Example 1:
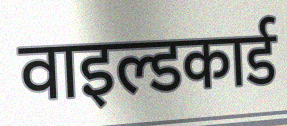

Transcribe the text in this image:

वाइल्डकार्ड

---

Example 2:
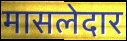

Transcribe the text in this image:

मासलेदार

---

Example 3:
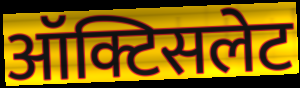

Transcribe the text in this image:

ऑक्टिसलेट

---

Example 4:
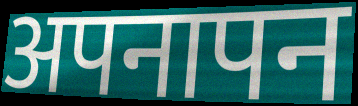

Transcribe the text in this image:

अपनापन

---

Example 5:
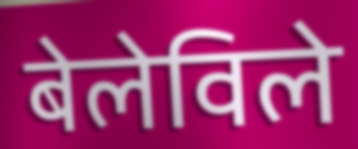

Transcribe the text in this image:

बेलेविले